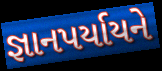
જ્ઞાનપર્યાયને